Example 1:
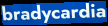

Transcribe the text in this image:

bradycardia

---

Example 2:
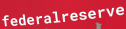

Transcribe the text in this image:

federalreserve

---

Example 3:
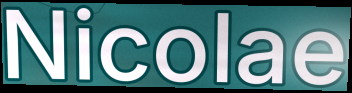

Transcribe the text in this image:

Nicolae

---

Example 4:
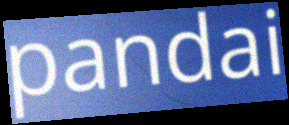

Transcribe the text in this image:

pandai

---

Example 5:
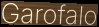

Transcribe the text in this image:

Garofalo